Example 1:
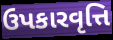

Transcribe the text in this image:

ઉપકારવૃત્તિ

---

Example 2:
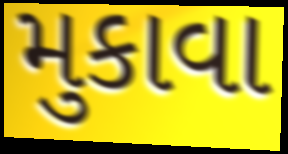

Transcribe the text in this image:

મુકાવા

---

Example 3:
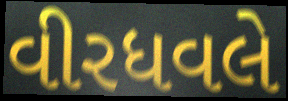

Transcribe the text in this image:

વીરધવલે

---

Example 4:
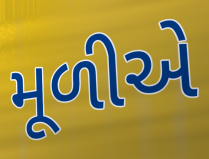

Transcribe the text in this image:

મૂળીએ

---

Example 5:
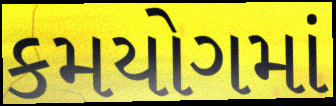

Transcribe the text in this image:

કમયોગમાં